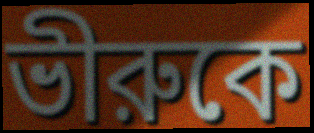
ভীরুকে